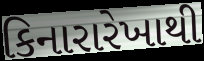
કિનારારેખાથી